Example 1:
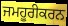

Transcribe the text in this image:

ਜਮਹੂਰੀਕਰਨ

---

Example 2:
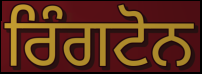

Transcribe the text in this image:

ਰਿੰਗਟੋਨ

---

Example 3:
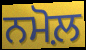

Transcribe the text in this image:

ਨਮੋਲ਼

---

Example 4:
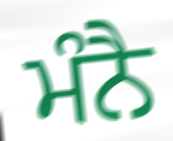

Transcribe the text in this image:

ਮੰਨੈ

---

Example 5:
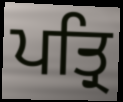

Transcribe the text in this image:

ਪਤ੍ਰਿ